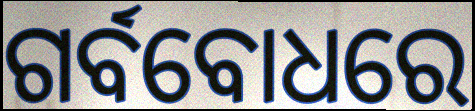
ଗର୍ବବୋଧରେ